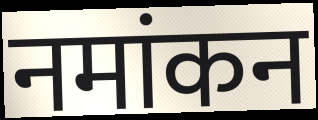
नमांकन